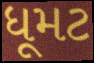
ધૂમટ